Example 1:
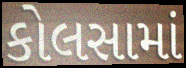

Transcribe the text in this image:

કોલસામાં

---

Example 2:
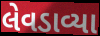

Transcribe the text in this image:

લેવડાવ્યા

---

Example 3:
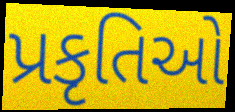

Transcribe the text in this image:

પ્રકૃતિઓ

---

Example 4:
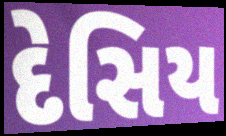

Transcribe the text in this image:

દેસિય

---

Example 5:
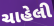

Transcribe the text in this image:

ચાહેલી